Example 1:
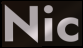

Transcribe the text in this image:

Nic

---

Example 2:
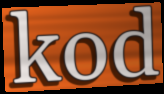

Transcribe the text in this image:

kod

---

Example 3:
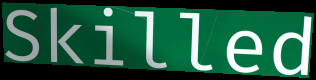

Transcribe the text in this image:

Skilled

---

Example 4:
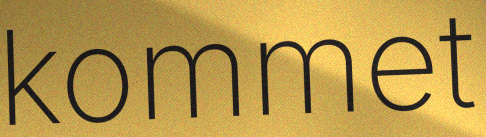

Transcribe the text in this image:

kommet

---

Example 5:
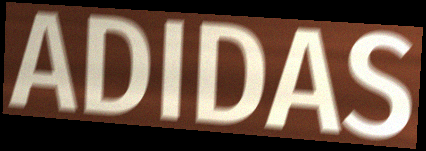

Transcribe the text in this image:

ADIDAS